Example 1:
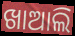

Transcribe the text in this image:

ଖାଆଲି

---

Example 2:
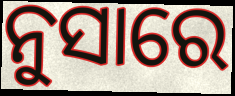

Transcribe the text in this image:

ନୁସାରେ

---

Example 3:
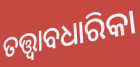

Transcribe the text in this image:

ତତ୍ତ୍ୱାବଧାରିକା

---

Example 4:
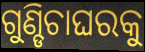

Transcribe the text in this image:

ଗୁଣ୍ଡିଚାଘରକୁ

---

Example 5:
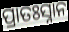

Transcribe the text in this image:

ପ୍ରାତଃସ୍ନାନ